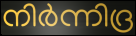
നിർന്നിദ്ര